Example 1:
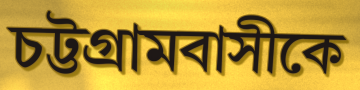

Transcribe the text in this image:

চট্টগ্রামবাসীকে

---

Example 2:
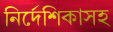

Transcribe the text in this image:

নির্দেশিকাসহ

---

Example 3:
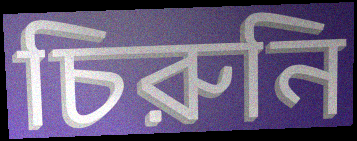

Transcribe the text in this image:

চিরুনি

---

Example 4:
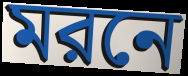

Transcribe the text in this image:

মরনে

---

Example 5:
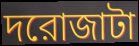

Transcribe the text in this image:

দরোজাটা